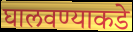
घालवण्याकडे